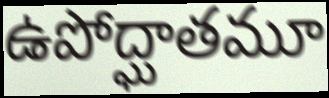
ఉపోద్ఘాతమూ